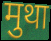
मुथा